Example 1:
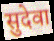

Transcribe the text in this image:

सुदेवा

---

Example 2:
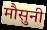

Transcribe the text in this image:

मौसुनी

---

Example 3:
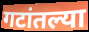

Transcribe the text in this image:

गटांतल्या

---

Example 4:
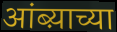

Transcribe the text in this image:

आंब्य़ाच्या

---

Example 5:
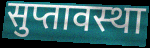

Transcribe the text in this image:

सुप्तावस्था